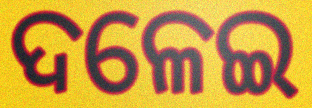
ଦଳେଇ